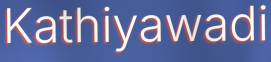
Kathiyawadi